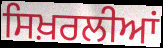
ਸਿਖ਼ਰਲੀਆਂ